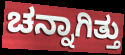
ಚನ್ನಾಗಿತ್ತು